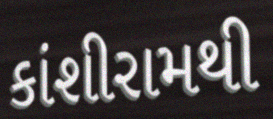
કાંશીરામથી